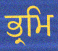
ਭ੍ਰਮਿ